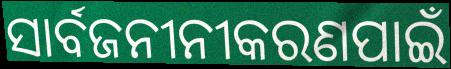
ସାର୍ବଜନୀନୀକରଣପାଇଁ